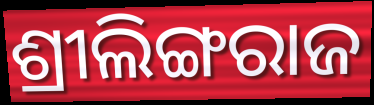
ଶ୍ରୀଲିଙ୍ଗରାଜ